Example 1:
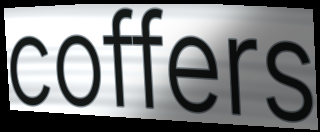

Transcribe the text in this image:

coffers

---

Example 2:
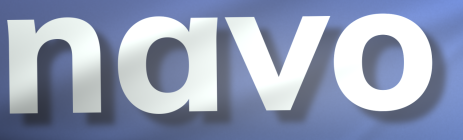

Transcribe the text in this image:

navo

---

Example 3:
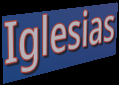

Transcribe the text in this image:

Iglesias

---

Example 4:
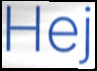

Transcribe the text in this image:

Hej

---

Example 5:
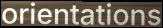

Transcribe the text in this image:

orientations